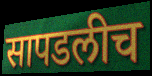
सापडलीच